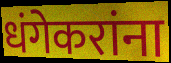
धंगेकरांना